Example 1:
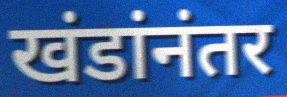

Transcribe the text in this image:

खंडांनंतर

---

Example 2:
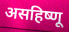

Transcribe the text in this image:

असहिष्णू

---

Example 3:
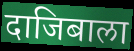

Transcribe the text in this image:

दाजिबाला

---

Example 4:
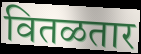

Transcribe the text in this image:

वितळतार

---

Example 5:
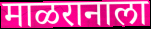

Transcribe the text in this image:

माळरानाला